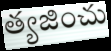
త్యజించు